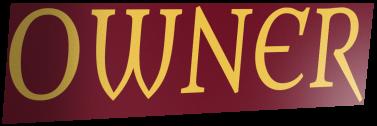
OWNER